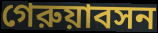
গেরুয়াবসন